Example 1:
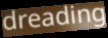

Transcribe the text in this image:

dreading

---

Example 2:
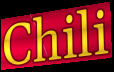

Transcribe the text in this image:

Chili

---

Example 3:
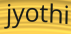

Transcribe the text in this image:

jyothi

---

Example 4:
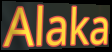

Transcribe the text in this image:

Alaka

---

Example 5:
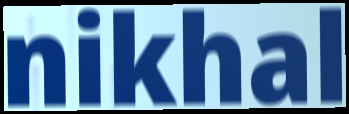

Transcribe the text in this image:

nikhal